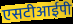
एसटीआईपी